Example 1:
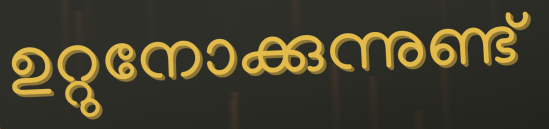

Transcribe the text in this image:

ഉറ്റുനോക്കുന്നുണ്ട്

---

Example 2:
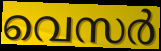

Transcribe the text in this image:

വെസർ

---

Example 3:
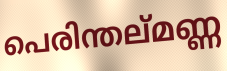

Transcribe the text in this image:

പെരിന്തല്മണ്ണ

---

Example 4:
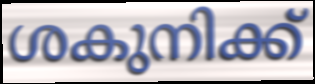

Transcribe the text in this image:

ശകുനിക്ക്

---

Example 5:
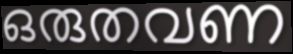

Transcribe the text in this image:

ഒരുതവണ